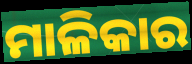
ମାଳିକାର